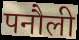
पनौली